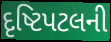
દૃષ્ટિપટલની